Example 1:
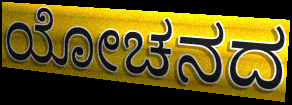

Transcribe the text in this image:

ಯೋಚನದ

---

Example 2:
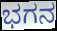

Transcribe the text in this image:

ಭಗನ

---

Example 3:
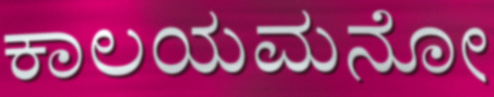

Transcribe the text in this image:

ಕಾಲಯಮನೋ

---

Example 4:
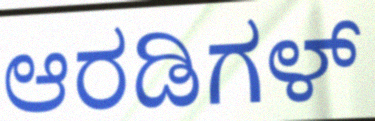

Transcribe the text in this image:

ಆರಡಿಗಳ್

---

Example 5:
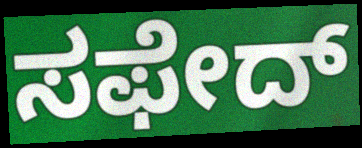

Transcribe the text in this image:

ಸಫೇದ್